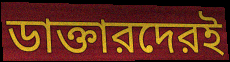
ডাক্তারদেরই